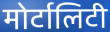
मोर्टालिटी